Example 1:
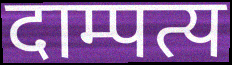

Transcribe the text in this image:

दाम्पत्य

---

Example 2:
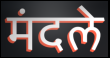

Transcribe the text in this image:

मंदले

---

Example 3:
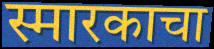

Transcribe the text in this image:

स्मारकाचा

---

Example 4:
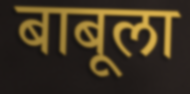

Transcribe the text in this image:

बाबूला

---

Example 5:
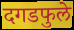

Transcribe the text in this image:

दगडफुले